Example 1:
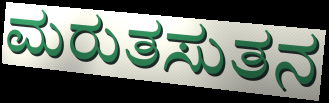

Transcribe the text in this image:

ಮರುತಸುತನ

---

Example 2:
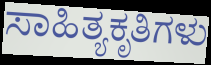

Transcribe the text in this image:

ಸಾಹಿತ್ಯಕೃತಿಗಳು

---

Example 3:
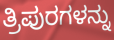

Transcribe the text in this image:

ತ್ರಿಪುರಗಳನ್ನು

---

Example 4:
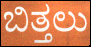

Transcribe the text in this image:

ಬಿತ್ತಲು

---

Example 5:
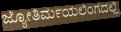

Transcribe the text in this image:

ಜ್ಯೋತಿರ್ಮಯಲಿಂಗದಲ್ಲಿ